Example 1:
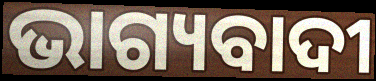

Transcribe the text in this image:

ଭାଗ୍ୟବାଦୀ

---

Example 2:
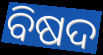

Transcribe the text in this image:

ବିଷଦ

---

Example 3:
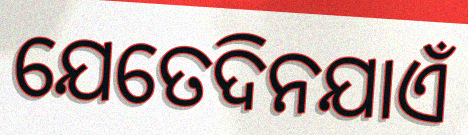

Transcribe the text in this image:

ଯେତେଦିନଯାଏଁ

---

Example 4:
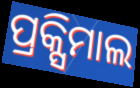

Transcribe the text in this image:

ପ୍ରକ୍ସିମାଲ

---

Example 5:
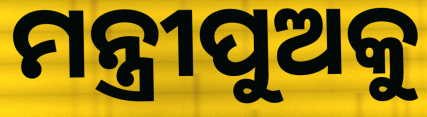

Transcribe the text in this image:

ମନ୍ତ୍ରୀପୁଅକୁ